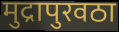
मुद्रापुरवठा